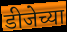
डीजेच्या